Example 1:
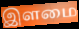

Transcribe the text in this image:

இளமை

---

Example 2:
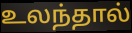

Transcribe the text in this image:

உலந்தால்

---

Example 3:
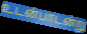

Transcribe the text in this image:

உடன்பாடன்று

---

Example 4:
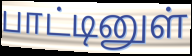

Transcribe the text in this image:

பாட்டினுள்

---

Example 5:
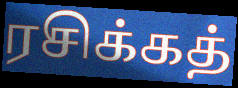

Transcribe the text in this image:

ரசிக்கத்